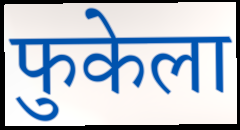
फुकेला